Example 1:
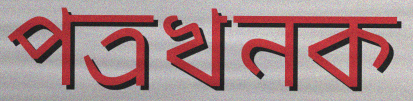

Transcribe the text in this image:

পত্ৰখনক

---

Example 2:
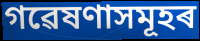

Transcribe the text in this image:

গৱেষণাসমূহৰ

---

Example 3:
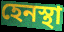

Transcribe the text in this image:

হেনস্থা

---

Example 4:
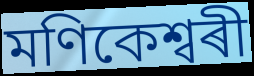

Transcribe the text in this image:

মণিকেশ্বৰী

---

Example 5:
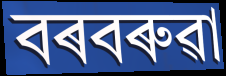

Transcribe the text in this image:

বৰবৰুৱা